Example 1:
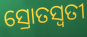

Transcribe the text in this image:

ସ୍ରୋତସ୍ଵତୀ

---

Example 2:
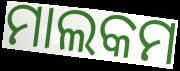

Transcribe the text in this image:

ମାଲକମ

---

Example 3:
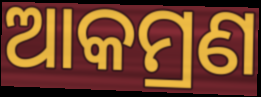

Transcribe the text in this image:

ଆକମ୍ରଣ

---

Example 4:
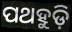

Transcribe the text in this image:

ପଥହୁଡ଼ି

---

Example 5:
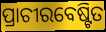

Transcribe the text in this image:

ପ୍ରାଚୀରବେଷ୍ଟିତ